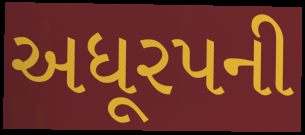
અધૂરપની